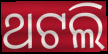
ଥଟଲି